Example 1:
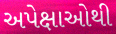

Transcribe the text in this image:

અપેક્ષાઓથી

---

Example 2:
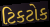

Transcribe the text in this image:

ટિકટોક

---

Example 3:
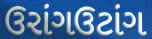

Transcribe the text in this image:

ઉરાંગઉટાંગ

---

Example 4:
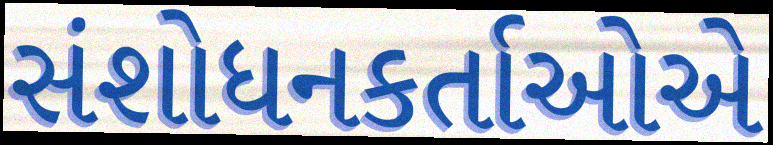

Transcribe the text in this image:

સંશોધનકર્તાઓએ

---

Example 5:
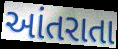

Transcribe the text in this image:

આંતરાતા